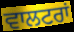
ਵਾਲਟਰਾਂ